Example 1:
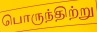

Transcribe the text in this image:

பொருந்திற்று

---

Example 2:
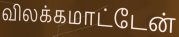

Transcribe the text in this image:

விலக்கமாட்டேன்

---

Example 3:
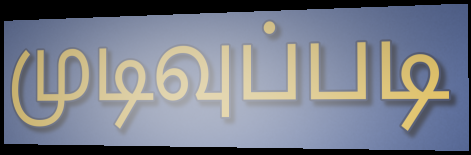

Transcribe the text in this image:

முடிவுப்படி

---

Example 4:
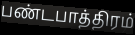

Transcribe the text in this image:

பண்டபாத்திரம்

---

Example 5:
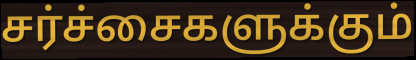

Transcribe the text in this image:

சர்ச்சைகளுக்கும்